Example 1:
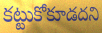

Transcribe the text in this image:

కట్టుకోకూడదని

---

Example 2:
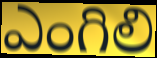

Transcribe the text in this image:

ఎంగిలి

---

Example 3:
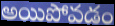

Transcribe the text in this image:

అయిపోవడం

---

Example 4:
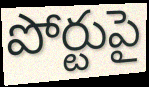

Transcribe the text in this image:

పోర్టుపై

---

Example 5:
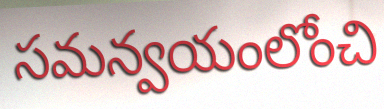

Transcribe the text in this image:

సమన్వయంలోంచి